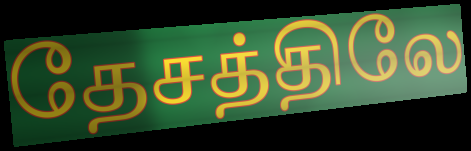
தேசத்திலே